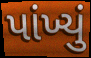
પાંખ્યું